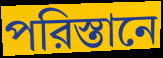
পরিস্তানে